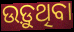
ଉଡ଼ୁଥିବା